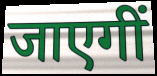
जाएगीं